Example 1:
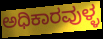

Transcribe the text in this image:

ಅಧಿಕಾರವುಳ್ಳ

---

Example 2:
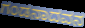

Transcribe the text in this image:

ಗಂಡನಾದವನ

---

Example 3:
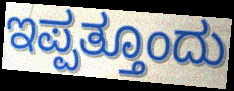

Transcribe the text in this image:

ಇಪ್ಪತ್ತೂಂದು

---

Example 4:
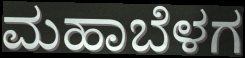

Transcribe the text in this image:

ಮಹಾಬೆಳಗ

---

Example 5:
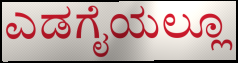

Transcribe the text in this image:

ಎಡಗೈಯಲ್ಲೂ